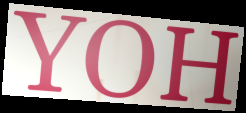
YOH